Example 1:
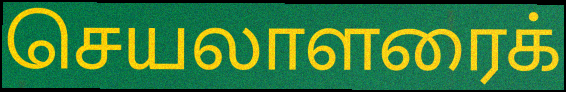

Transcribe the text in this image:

செயலாளரைக்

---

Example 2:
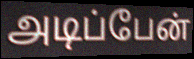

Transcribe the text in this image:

அடிப்பேன்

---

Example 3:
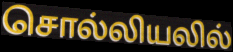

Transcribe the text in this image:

சொல்லியலில்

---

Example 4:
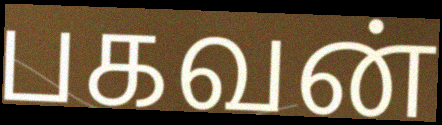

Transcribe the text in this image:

பகவன்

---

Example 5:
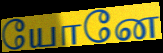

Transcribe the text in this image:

யோனே